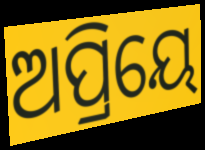
ଅପ୍ରିୟେ